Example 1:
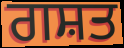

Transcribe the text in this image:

ਗਸ਼ਤ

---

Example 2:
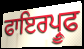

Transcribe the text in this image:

ਫਾਇਰਪ੍ਰੂਫ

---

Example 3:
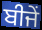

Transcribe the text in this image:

ਬੀਜੇਂ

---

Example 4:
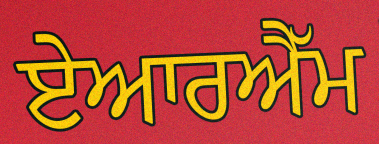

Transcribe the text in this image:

ਏਆਰਐੱਮ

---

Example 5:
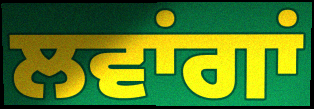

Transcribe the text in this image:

ਲਵਾਂਗਾਂ